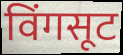
विंगसूट